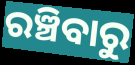
ରଞ୍ଚିବାରୁ